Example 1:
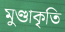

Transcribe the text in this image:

মুণ্ডাকৃতি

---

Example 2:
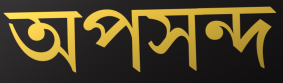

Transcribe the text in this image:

অপসন্দ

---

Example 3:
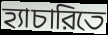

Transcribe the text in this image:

হ্যাচারিতে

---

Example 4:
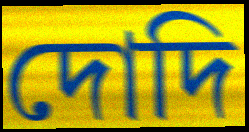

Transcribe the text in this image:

দোদি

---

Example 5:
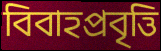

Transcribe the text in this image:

বিবাহপ্রবৃত্তি